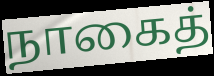
நாகைத்